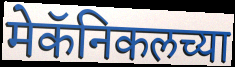
मेकॅनिकलच्या